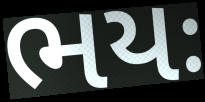
ભયઃ